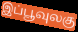
இப்பூவுலகு